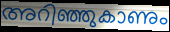
അറിഞ്ഞുകാണും